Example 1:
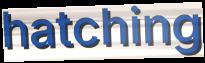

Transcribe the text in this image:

hatching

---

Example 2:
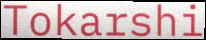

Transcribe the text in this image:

Tokarshi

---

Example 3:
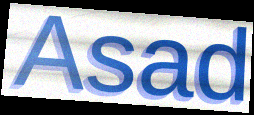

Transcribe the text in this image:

Asad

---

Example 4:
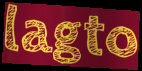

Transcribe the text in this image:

lagto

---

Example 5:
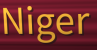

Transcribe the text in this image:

Niger